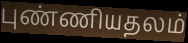
புண்ணியதலம்